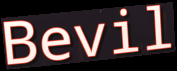
Bevil